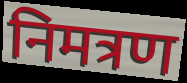
निमत्रण